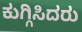
ಕುಗ್ಗಿಸಿದರು